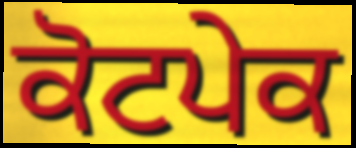
ਕੋਟਪੇਕ